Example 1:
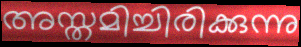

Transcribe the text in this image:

അസ്തമിച്ചിരിക്കുന്നു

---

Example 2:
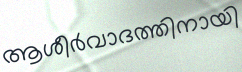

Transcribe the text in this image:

ആശീർവാദത്തിനായി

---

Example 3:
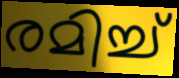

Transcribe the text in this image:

രമിച്ച്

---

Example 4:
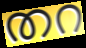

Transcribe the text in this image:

തറ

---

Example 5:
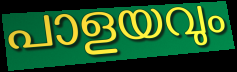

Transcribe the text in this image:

പാളയവും